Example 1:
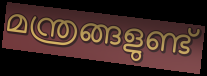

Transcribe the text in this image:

മന്ത്രങ്ങളുണ്ട്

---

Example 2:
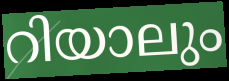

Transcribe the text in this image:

റിയാലും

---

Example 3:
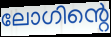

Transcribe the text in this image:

ലോഗിന്റെ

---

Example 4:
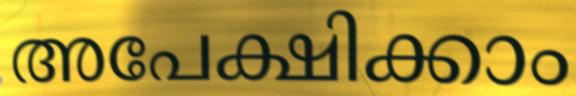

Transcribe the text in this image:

അപേക്ഷിക്കാം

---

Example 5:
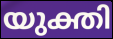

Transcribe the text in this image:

യുക്തി